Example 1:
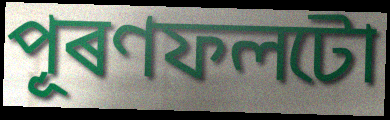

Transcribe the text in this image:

পূৰণফলটো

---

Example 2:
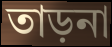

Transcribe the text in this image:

তাড়না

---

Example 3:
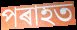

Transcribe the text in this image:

পৰাহত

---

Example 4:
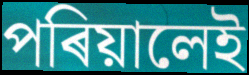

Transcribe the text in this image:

পৰিয়ালেই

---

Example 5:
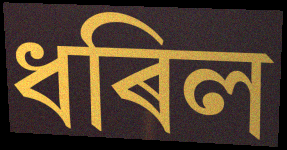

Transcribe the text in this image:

ধৰিল